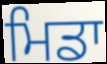
ਮਿਡਾ